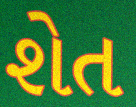
શેત